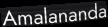
Amalananda